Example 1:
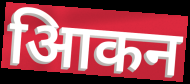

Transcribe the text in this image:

आिकन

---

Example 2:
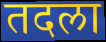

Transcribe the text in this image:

तदला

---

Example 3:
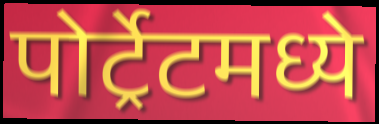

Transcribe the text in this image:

पोर्ट्रेटमध्ये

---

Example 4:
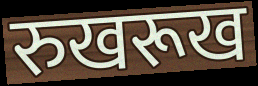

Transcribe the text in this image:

रुखरूख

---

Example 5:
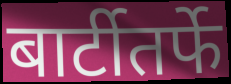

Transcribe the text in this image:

बार्टीतर्फे